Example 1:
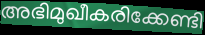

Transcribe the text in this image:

അഭിമുഖീകരിക്കേണ്ടി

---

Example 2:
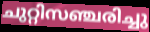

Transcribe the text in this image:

ചുറ്റിസഞ്ചരിച്ചു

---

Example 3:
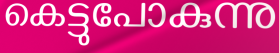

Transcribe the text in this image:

കെട്ടുപോകുന്നു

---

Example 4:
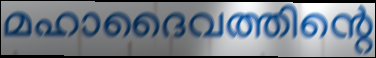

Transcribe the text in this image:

മഹാദൈവത്തിന്റെ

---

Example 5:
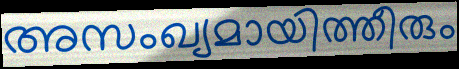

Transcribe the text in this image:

അസംഖ്യമായിത്തീരും